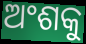
ଅଂଶକୁ